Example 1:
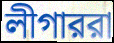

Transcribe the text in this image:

লীগাররা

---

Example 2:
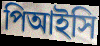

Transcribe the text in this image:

পিআইসি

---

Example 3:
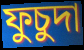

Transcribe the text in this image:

ফুচুদা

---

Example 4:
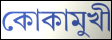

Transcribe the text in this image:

কোকামুখী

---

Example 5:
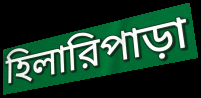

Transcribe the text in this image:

হিলারিপাড়া